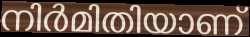
നിർമിതിയാണ്